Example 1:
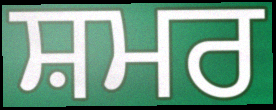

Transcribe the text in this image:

ਸ਼ਮਰ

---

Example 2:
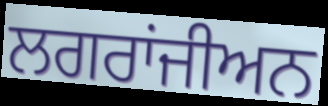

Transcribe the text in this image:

ਲਗਰਾਂਜੀਅਨ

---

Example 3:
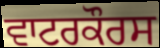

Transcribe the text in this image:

ਵਾਟਰਕੌਰਸ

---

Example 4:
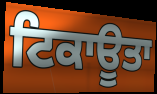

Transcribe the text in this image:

ਟਿਕਾਊਤਾ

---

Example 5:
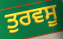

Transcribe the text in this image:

ਤੁਰਵਸੂ